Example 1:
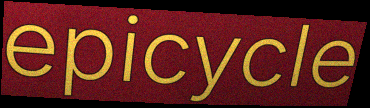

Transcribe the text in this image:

epicycle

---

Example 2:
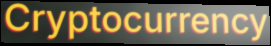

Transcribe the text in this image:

Cryptocurrency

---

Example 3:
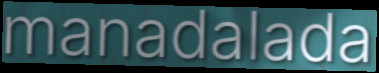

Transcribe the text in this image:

manadalada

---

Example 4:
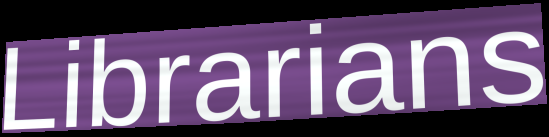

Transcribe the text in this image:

Librarians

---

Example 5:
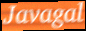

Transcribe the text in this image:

Javagal